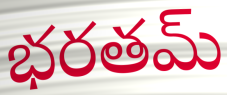
భరతమ్